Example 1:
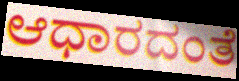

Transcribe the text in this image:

ಆಧಾರದಂತೆ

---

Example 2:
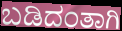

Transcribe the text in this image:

ಬಡಿದಂತಾಗಿ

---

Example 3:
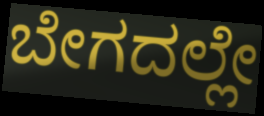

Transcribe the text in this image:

ಬೇಗದಲ್ಲೇ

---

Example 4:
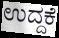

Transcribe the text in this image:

ಉದ್ದಕೆ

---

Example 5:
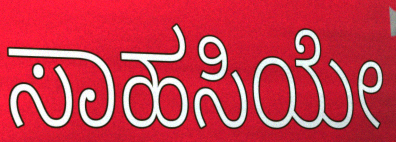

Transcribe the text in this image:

ಸಾಹಸಿಯೇ